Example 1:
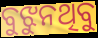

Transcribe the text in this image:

ବୁଝୁନଥିବୁ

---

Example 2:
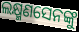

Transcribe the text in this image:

ଲକ୍ଷ୍ମଣସେନଙ୍କୁ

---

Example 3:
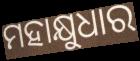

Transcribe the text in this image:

ମହାକ୍ଷୁଧାର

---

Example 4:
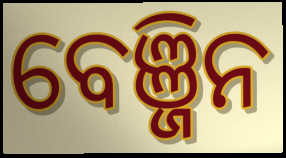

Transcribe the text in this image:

ବେଞ୍ଜିନ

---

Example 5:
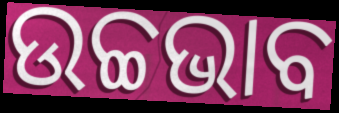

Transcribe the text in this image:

ଉଚ୍ଚଭାବ